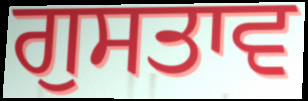
ਗੁਸਤਾਵ